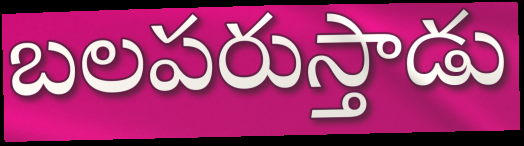
బలపరుస్తాడు